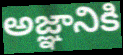
అజ్ఞానికి